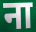
ना